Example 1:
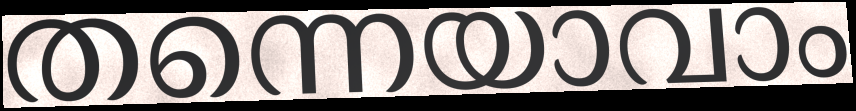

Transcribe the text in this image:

തന്നെയാവാം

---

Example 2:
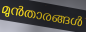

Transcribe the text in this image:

മുൻതാരങ്ങൾ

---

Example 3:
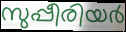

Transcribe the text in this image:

സുപ്പീരിയർ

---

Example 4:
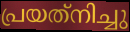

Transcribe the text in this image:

പ്രയത്‌നിച്ചു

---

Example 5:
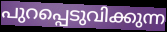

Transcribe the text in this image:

പുറപ്പെടുവിക്കുന്ന